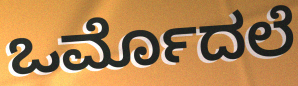
ಒರ್ಮೊದಲೆ